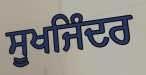
ਸੂਖਜਿੰਦਰ